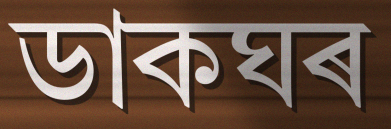
ডাকঘৰ